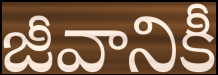
జీవానికీ